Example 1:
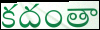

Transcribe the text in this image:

కదంతా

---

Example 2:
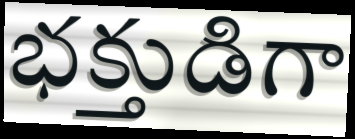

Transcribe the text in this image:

భక్తుడిగా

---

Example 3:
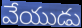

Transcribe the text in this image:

వేయుడు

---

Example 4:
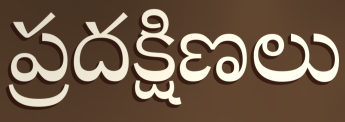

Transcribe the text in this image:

ప్రదక్షిణలు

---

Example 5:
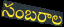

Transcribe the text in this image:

సంబరాల